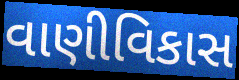
વાણીવિકાસ